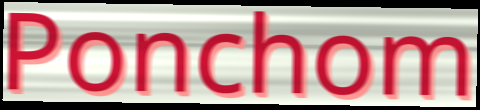
Ponchom